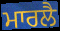
ਮਾਰਲੈ